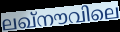
ലഖ്നൗവിലെ